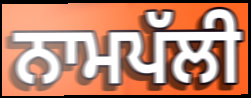
ਨਾਮਪੱਲੀ